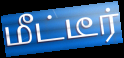
மீட்டீர்